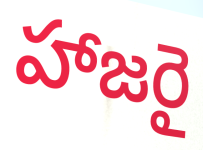
హాజరై